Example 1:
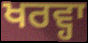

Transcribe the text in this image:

ਖਰਵ੍ਹਾ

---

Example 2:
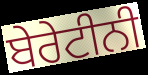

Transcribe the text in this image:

ਬੇਰੇਟੀਨੀ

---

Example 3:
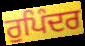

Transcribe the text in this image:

ਰੁਪਿੰਦਰ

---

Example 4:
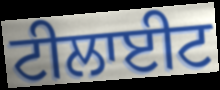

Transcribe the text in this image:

ਟੀਲਾਈਟ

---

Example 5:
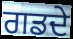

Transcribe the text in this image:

ਗਡਦੇ